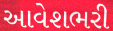
આવેશભરી